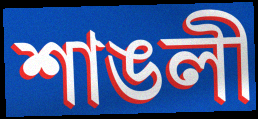
শাঙলী